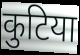
कुटिया